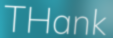
THank